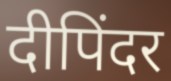
दीपिंदर